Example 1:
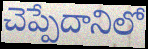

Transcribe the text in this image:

చెప్పేదానిలో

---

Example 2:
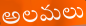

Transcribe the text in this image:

అలమలు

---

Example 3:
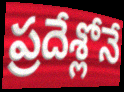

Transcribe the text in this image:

ప్రదేశ్లోనే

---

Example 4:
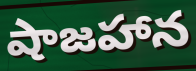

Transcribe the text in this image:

షాజహాన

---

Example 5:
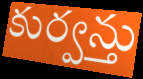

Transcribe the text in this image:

కుర్వన్తు